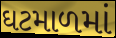
ઘટમાળમાં